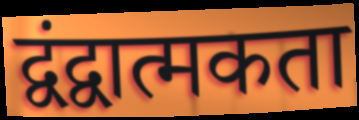
द्वंद्वात्मकता